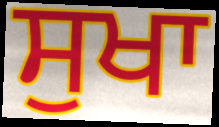
ਸੁਖਾ